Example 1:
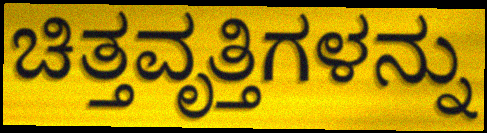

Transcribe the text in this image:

ಚಿತ್ತವೃತ್ತಿಗಳನ್ನು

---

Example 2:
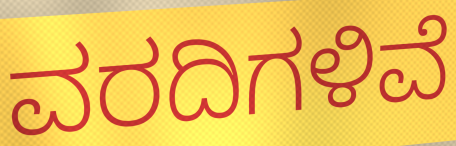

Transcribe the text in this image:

ವರದಿಗಳಿವೆ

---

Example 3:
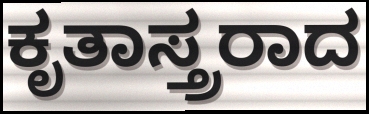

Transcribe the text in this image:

ಕೃತಾಸ್ತ್ರರಾದ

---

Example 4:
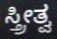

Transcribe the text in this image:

ಸ್ತ್ರೀತ್ವ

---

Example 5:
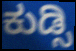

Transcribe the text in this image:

ಕುಡ್ಸಿ